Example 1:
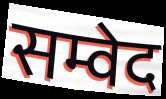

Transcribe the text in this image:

सम्वेद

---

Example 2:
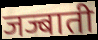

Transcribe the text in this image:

जज्‍बाती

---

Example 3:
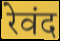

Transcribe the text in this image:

रेवंद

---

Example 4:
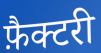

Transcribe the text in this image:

फ़ैक्टरी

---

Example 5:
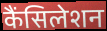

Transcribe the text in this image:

कैंसिलेशन